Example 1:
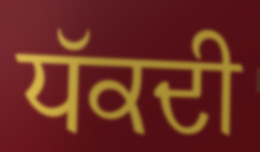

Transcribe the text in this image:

ਧੱਕਦੀ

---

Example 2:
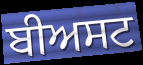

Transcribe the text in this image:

ਬੀਅਸਟ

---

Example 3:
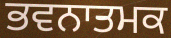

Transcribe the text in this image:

ਭਵਨਾਤਮਕ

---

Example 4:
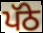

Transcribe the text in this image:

ਪੱਠੇ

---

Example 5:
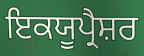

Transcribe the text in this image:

ਇਕਯੂਪ੍ਰੈਸ਼ਰ